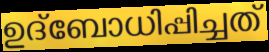
ഉദ്ബോധിപ്പിച്ചത്